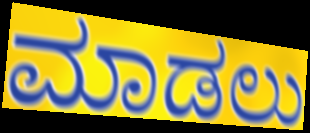
ಮಾಡಲು